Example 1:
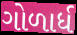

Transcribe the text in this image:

ગોળાર્ધ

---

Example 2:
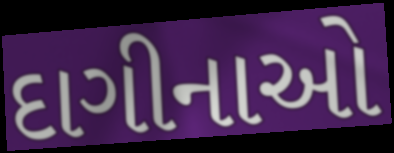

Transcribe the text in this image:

દાગીનાઓ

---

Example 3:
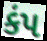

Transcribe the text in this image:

કંપ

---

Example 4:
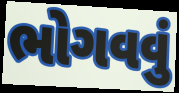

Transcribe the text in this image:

ભોગવવું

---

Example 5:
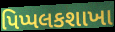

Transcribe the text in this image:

પિપ્પલકશાખા